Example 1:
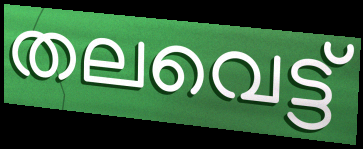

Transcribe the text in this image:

തലവെട്ട്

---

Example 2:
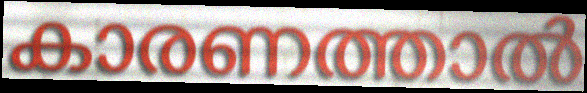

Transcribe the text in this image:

കാരണത്താൽ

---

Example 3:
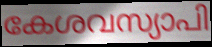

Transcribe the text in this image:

കേശവസ്യാപി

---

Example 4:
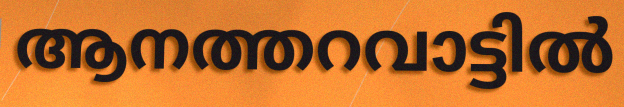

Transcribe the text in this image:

ആനത്തറവാട്ടിൽ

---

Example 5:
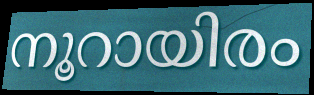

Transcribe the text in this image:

നൂറായിരം